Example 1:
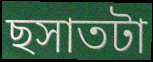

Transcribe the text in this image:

ছসাতটা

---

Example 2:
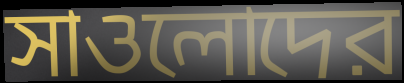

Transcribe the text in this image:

সাওলোদের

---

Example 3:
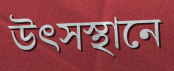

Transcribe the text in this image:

উৎসস্থানে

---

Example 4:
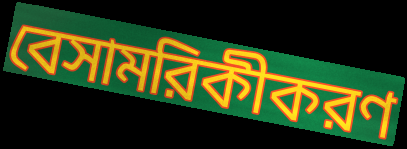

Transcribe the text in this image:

বেসামরিকীকরণ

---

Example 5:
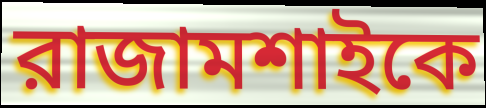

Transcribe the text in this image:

রাজামশাইকে